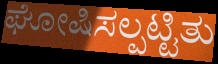
ಘೋಷಿಸಲ್ಪಟ್ಟಿತು